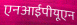
एनआईपीयूएन